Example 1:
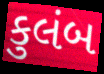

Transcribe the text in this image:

કુલંબ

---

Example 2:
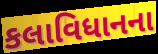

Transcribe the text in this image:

કલાવિધાનના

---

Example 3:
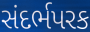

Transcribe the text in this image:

સંદર્ભપરક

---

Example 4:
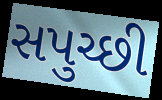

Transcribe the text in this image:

સપુચ્છી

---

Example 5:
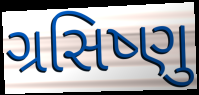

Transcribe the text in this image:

ગ્રસિષ્ણુ